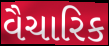
વૈચારિક